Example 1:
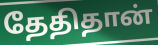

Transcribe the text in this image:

தேதிதான்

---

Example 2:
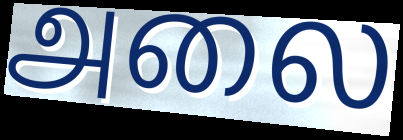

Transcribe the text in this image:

அலை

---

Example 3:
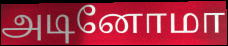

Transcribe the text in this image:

அடினோமா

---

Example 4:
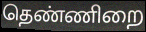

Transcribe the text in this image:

தெண்ணிறை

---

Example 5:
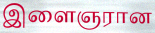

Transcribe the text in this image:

இளைஞரான